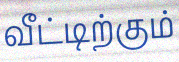
வீட்டிற்கும்